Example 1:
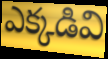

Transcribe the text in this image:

ఎక్కడివి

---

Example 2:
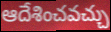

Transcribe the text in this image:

ఆదేశించవచ్చు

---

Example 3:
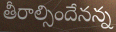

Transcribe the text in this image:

తీరాల్సిందేనన్న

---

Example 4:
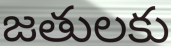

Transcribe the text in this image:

జతులకు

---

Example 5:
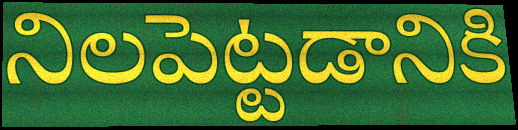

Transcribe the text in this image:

నిలపెట్టడానికి